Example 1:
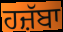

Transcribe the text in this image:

ਹਜ਼ੱਬਾ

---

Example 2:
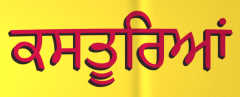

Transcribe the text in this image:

ਕਸਤੂਰਿਆਂ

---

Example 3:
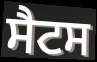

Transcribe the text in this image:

ਸੈਟਸ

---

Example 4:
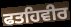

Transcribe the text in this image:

ਫਤਹਿਵੀਰ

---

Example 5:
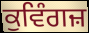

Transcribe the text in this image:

ਕੁਵਿੰਗਜ਼